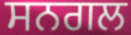
ਸਨਗਲ